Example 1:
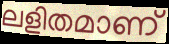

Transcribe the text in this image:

ലളിതമാണ്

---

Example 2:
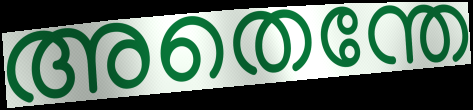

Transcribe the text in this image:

അതെന്തേ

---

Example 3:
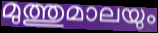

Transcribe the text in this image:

മുത്തുമാലയും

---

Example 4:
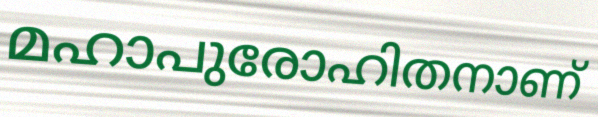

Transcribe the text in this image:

മഹാപുരോഹിതനാണ്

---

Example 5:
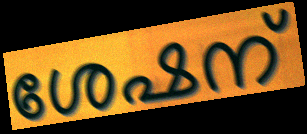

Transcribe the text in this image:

ശേഷന്